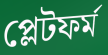
প্লেটফৰ্ম